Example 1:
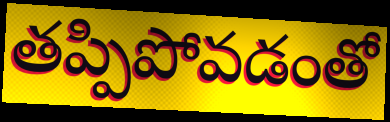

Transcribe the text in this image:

తప్పిపోవడంతో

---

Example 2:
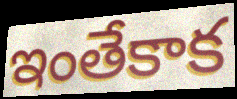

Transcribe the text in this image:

ఇంతేకాక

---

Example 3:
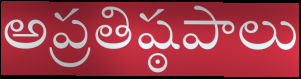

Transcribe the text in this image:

అప్రతిష్ఠపాలు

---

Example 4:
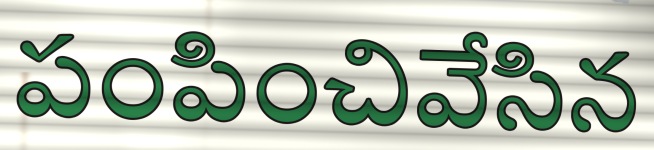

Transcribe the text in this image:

పంపించివేసిన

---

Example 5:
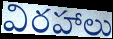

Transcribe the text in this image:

విరహాలు